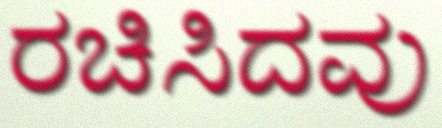
ರಚಿಸಿದವು